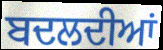
ਬਦਲਦੀਆਂ